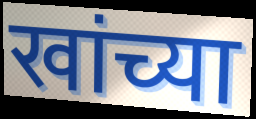
खांच्या